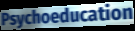
Psychoeducation